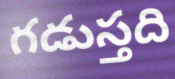
గడుస్తది